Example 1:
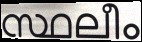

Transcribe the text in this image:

സ്ഥലീം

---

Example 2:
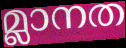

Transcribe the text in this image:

മ്ലാനത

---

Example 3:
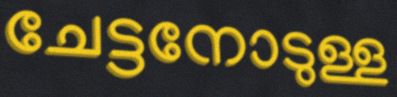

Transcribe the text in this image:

ചേട്ടനോടുള്ള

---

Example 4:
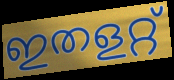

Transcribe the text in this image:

ഇതളറ്റ്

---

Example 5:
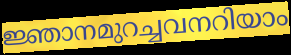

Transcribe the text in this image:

ജ്ഞാനമുറച്ചവനറിയാം